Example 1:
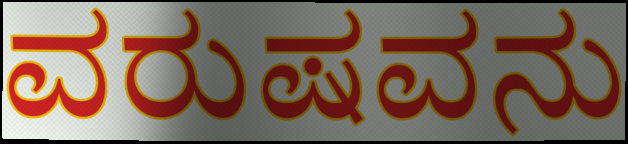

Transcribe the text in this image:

ವರುಷವನು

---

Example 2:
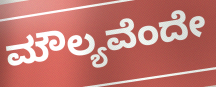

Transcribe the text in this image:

ಮೌಲ್ಯವೆಂದೇ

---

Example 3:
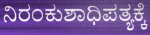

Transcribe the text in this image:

ನಿರಂಕುಶಾಧಿಪತ್ಯಕ್ಕೆ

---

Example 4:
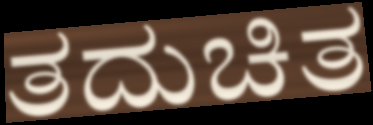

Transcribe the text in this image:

ತದುಚಿತ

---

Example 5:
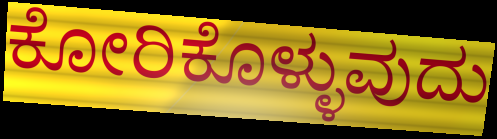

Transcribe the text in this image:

ಕೋರಿಕೊಳ್ಳುವುದು